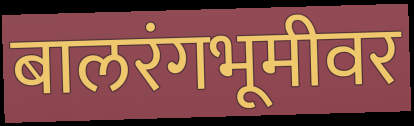
बालरंगभूमीवर